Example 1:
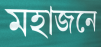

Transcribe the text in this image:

মহাজনে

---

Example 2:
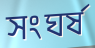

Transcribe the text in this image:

সংঘৰ্ষ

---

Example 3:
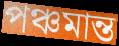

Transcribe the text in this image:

পঞ্চমান্ত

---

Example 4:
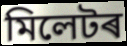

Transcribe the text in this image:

মিলেটৰ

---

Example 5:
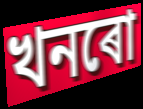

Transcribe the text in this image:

খনৰো